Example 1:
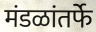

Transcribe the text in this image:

मंडळांतर्फे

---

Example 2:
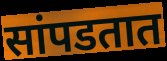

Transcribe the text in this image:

सांपडतात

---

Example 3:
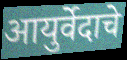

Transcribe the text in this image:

आयुर्वेदाचे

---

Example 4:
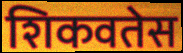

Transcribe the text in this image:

शिकवतेस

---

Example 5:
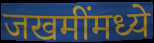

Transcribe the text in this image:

जखमींमध्ये